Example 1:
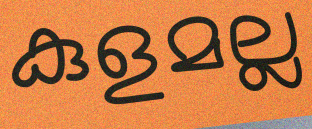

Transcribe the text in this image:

കുളമല്ല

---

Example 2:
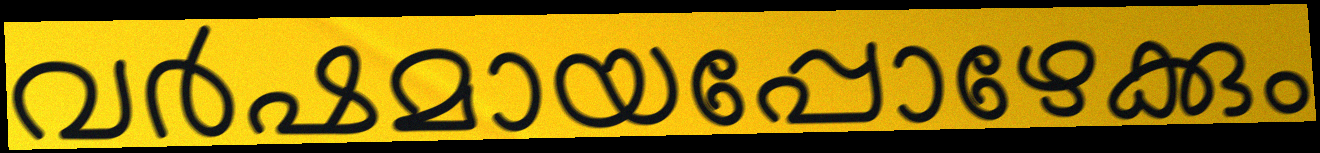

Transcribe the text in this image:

വർഷമായപ്പോഴേക്കും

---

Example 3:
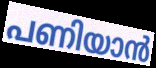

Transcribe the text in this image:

പണിയാൻ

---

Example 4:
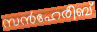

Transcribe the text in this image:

സൻഹേരീബ്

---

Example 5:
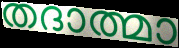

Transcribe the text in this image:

തദാത്മാ